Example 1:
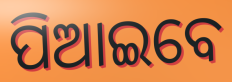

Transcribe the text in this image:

ପିଆଇବେ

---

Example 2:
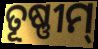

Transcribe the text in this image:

ତୂଷ୍ଣୀମ୍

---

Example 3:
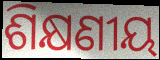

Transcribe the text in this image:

ଶିକ୍ଷଣୀୟ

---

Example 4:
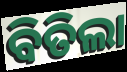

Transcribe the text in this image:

ବିତିଲା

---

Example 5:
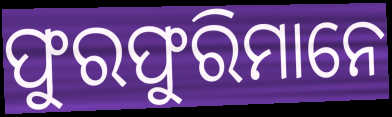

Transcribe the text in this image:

ଫୁରଫୁରିମାନେ